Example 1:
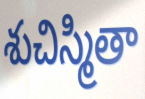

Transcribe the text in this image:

శుచిస్మితా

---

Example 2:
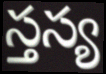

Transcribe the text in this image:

స్తస్య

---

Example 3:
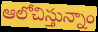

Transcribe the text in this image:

ఆలోచిస్తున్నాం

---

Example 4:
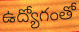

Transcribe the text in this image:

ఉద్యోగంతో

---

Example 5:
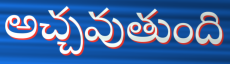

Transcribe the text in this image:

అచ్చవుతుంది